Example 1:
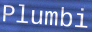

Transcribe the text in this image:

Plumbi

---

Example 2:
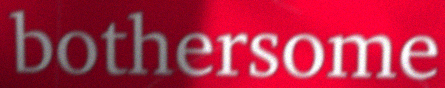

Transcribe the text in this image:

bothersome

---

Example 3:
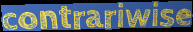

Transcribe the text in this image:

contrariwise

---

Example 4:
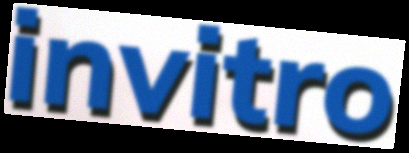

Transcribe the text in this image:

invitro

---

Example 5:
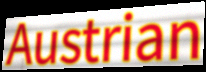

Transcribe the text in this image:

Austrian